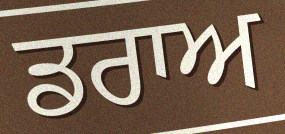
ਡਰਾਅ